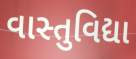
વાસ્તુવિદ્યા